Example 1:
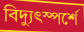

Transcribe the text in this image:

বিদ্যুৎস্পর্শে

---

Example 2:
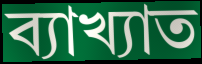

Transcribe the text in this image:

ব্যাখ্যাত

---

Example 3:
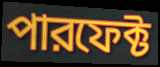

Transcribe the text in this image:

পারফেক্ট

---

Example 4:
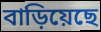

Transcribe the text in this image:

বাড়িয়েছে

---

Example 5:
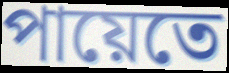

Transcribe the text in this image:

পায়েতে